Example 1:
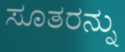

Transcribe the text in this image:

ಸೂತರನ್ನು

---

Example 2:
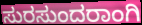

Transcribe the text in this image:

ಸುರಸುಂದರಾಂಗಿ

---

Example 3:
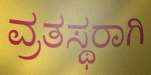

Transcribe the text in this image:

ವ್ರತಸ್ಥರಾಗಿ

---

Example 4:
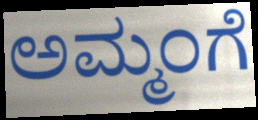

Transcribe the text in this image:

ಅಮ್ಮಂಗೆ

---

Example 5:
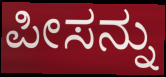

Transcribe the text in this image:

ಪೀಸನ್ನು